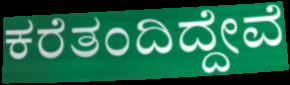
ಕರೆತಂದಿದ್ದೇವೆ